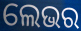
ଲେଭର